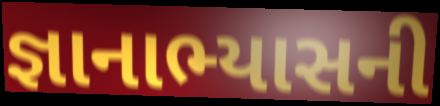
જ્ઞાનાભ્યાસની